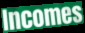
Incomes